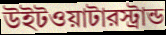
উইটওয়াটারস্ট্রান্ড